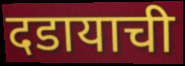
दडायाची